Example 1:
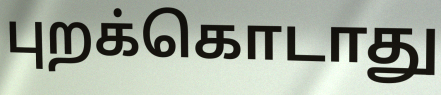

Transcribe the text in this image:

புறக்கொடாது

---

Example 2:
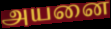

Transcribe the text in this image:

அயனை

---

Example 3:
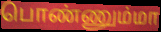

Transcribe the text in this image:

பொண்ணும்மா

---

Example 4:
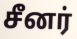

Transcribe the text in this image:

சீனர்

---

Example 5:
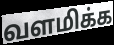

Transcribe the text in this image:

வளமிக்க